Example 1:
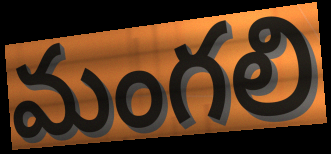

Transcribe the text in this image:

మంగలి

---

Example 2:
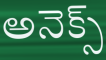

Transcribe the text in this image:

అనెక్స్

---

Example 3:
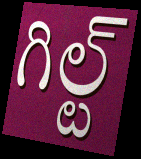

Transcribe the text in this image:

గిల్ట్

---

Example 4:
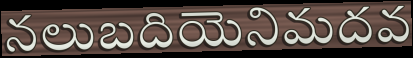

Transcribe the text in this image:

నలుబదియెనిమదవ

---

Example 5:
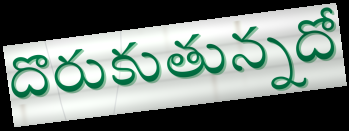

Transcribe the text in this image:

దొరుకుతున్నదో